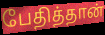
பேதித்தான்